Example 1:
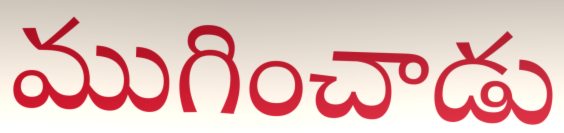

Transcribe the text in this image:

ముగించాడు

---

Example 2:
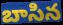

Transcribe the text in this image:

బాసిన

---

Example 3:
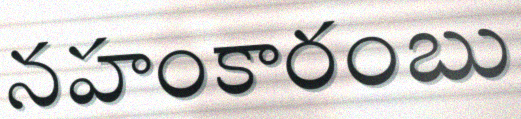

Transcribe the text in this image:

నహంకారంబు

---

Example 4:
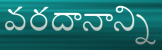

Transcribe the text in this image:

వరదానాన్ని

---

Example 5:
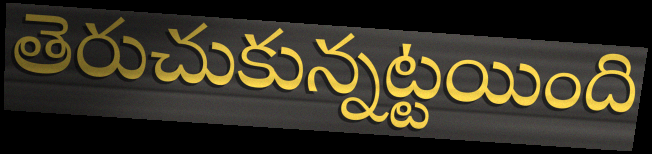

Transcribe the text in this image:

తెరుచుకున్నట్టయింది